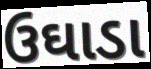
ઉઘાડા